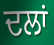
ਦਲਾਂ